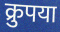
क्रुपया